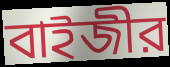
বাইজীর